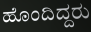
ಹೊಂದಿದ್ದರು